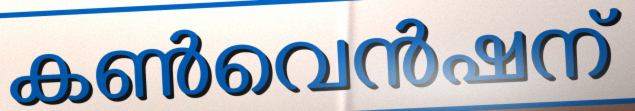
കൺവെൻഷന്